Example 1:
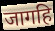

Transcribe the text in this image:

जागहि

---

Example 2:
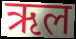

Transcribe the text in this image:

ऋल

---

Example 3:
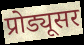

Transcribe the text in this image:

प्रोड्यूसर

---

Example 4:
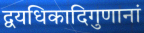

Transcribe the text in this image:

द्वयधिकादिगुणानां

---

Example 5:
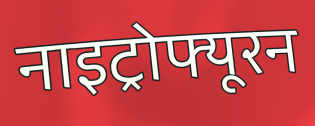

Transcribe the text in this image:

नाइट्रोफ्यूरन